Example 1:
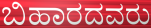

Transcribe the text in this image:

ಬಿಹಾರದವರು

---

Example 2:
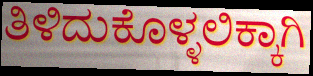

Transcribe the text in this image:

ತಿಳಿದುಕೊಳ್ಳಲಿಕ್ಕಾಗಿ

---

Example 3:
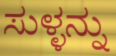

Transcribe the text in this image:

ಸುಳ್ಳನ್ನು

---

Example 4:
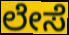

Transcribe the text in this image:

ಲೇಸೆ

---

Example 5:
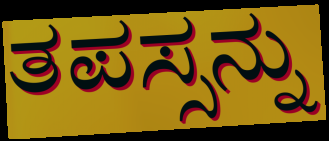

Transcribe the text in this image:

ತಪಸ್ಸನ್ನು